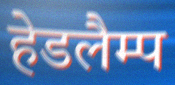
हेडलैम्प